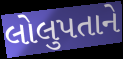
લોલુપતાને